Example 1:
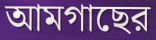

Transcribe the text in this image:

আমগাছের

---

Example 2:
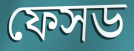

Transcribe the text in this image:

ফেসড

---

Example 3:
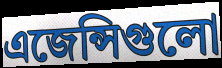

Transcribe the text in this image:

এজেন্সিগুলো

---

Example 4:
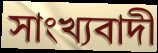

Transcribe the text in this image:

সাংখ্যবাদী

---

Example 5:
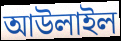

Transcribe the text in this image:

আউলাইল